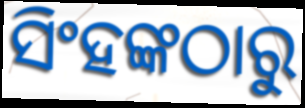
ସିଂହଙ୍କଠାରୁ